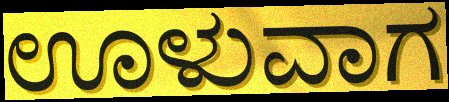
ಊಳುವಾಗ